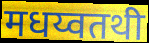
मधय्वतथी